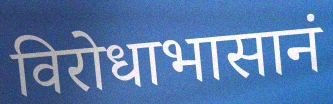
विरोधाभासानं